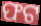
ଫଟ